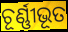
ଚୂର୍ଣ୍ଣୀଭୂତ